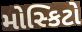
મોસ્કિટો